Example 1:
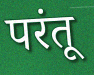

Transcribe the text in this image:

परंतू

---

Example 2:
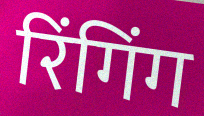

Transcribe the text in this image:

रिंगिंग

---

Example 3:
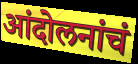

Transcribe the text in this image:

आंदोलनांचं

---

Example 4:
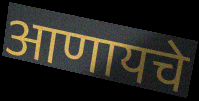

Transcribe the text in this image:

आणायचे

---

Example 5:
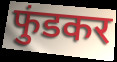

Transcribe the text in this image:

फुंडकर